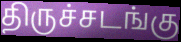
திருச்சடங்கு